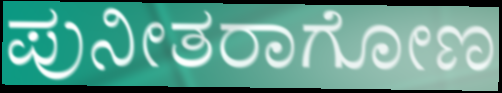
ಪುನೀತರಾಗೋಣ